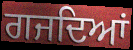
ਗਜਦਿਆਂ